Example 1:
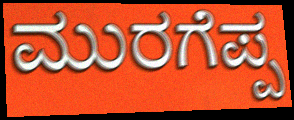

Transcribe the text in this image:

ಮುರಗೆಪ್ಪ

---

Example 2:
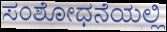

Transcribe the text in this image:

ಸಂಶೋಧನೆಯಲ್ಲಿ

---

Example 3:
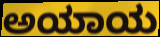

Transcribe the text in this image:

ಅಯಾಯ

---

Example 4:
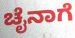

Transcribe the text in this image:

ಚೈನಾಗೆ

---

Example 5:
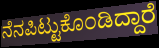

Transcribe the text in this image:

ನೆನಪಿಟ್ಟುಕೊಂಡಿದ್ದಾರೆ